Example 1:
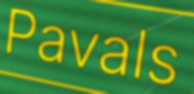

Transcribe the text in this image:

Pavals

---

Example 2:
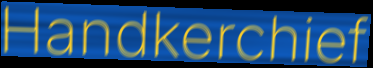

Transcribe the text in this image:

Handkerchief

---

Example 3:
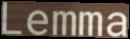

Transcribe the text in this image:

Lemma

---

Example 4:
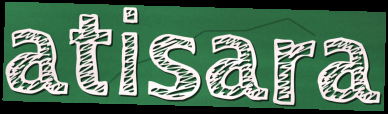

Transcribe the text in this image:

atisara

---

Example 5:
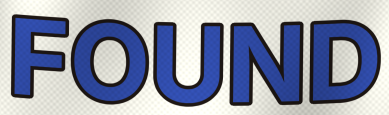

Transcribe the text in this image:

FOUND